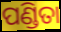
ପଣ୍ଡିତା